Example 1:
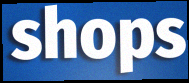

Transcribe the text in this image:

shops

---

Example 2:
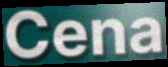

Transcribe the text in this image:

Cena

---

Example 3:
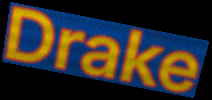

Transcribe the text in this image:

Drake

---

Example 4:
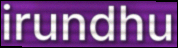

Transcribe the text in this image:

irundhu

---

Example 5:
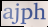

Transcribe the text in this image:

ajph